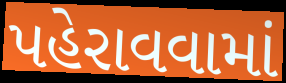
પહેરાવવામાં